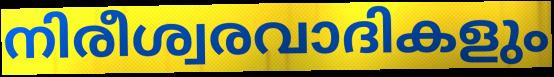
നിരീശ്വരവാദികളും